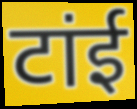
टांई